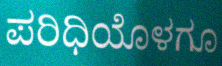
ಪರಿಧಿಯೊಳಗೂ